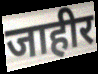
जाहीर